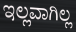
ಇಲ್ಲವಾಗಿಲ್ಲ